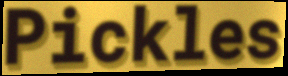
Pickles